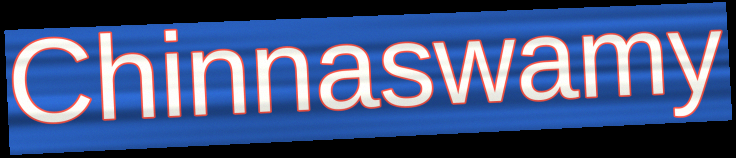
Chinnaswamy